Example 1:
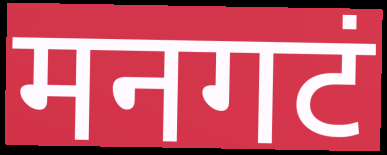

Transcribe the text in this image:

मनगटं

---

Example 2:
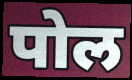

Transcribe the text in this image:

पोल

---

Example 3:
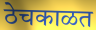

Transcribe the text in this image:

ठेचकाळत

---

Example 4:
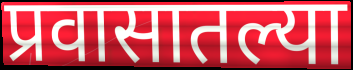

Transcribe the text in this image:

प्रवासातल्या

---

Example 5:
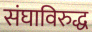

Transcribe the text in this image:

संघाविरुद्ध